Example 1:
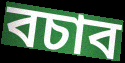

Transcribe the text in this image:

বচাব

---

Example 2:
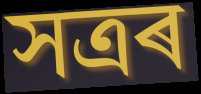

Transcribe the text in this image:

সত্ৰৰ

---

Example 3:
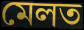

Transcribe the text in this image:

মেলত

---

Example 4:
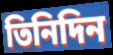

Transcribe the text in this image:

তিনিদিন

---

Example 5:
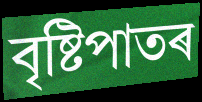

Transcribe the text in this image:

বৃষ্টিপাতৰ